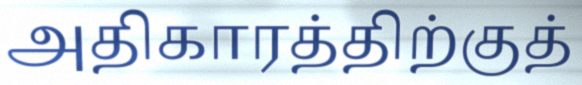
அதிகாரத்திற்குத்